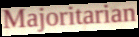
Majoritarian